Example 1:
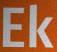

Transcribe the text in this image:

Ek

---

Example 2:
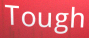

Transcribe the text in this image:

Tough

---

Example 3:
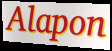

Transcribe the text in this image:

Alapon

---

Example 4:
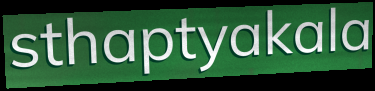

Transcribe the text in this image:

sthaptyakala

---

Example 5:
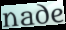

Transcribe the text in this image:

nade